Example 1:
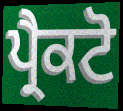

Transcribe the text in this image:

ਪ੍ਰੈਕਟੋ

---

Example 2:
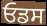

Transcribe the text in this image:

ਓਡਸ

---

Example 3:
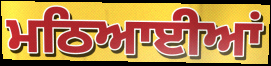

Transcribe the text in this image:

ਮਠਿਆਈਆਂ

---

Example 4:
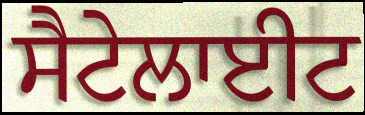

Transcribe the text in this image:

ਸੈਟੇਲਾਈਟ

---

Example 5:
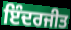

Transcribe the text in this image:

ਇੰਦਰਜੀਤ